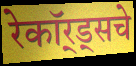
रेकॉर्ड्सचे